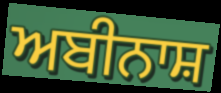
ਅਬੀਨਾਸ਼